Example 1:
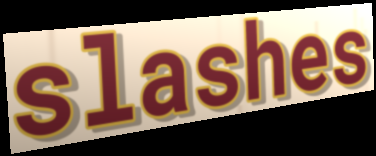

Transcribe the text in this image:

slashes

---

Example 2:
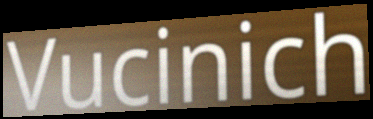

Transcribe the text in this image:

Vucinich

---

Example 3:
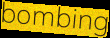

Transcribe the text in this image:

bombing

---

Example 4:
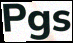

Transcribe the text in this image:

Pgs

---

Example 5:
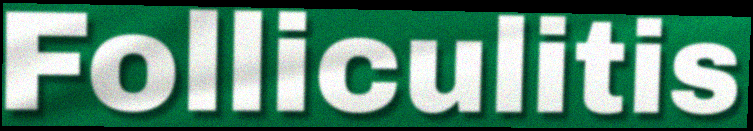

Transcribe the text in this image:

Folliculitis